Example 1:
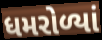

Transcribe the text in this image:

ધમરોળ્યાં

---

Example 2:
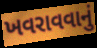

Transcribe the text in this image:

ખવરાવવાનું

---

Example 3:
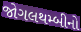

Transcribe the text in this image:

જોગલથમ્બીનો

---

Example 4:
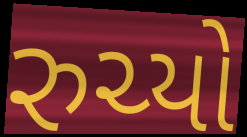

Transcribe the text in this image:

રુચ્યો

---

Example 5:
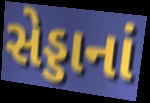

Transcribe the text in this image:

સેડ્ડાનાં